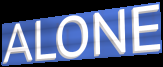
ALONE